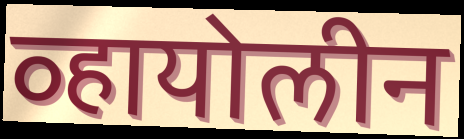
व्हायोलीन